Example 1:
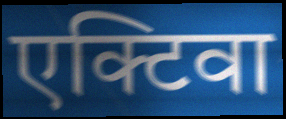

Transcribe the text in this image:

एक्टिवा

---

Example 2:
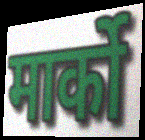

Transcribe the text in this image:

मार्को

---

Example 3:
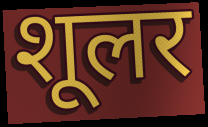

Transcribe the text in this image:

शूलर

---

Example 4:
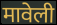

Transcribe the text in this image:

मावेली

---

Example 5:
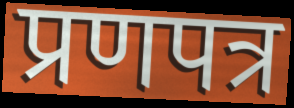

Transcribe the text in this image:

प्रणपत्र